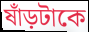
ষাঁড়টাকে